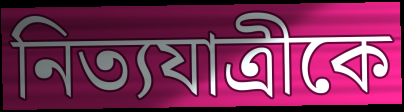
নিত্যযাত্রীকে